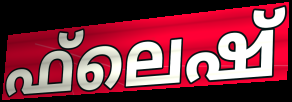
ഫ്‌ലെഷ്